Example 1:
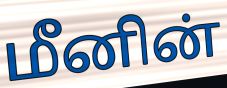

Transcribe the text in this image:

மீனின்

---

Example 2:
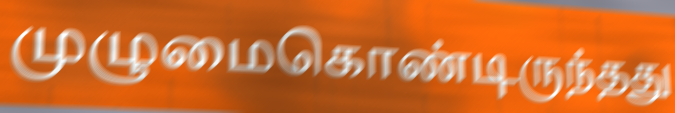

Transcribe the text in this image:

முழுமைகொண்டிருந்தது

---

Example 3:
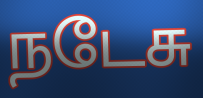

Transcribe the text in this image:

நடேசு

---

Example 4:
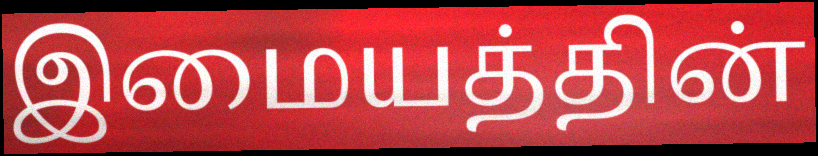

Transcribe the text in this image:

இமையத்தின்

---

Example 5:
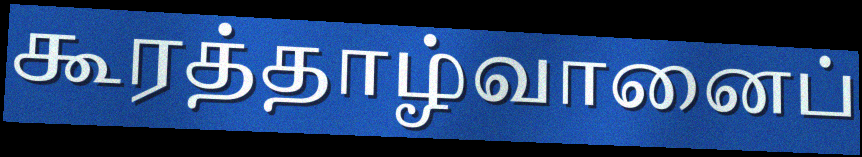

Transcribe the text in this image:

கூரத்தாழ்வானைப்